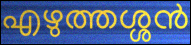
എഴുത്തശ്ശൻ